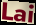
Lai